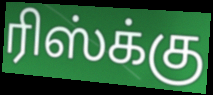
ரிஸ்க்கு